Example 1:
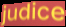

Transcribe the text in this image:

judice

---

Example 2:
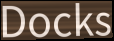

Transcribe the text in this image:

Docks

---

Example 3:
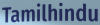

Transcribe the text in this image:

Tamilhindu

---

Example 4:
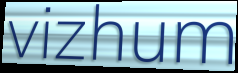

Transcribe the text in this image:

vizhum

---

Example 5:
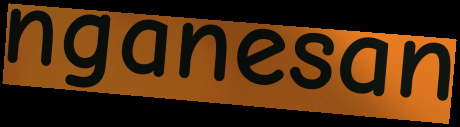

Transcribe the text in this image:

nganesan